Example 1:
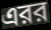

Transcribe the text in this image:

এরর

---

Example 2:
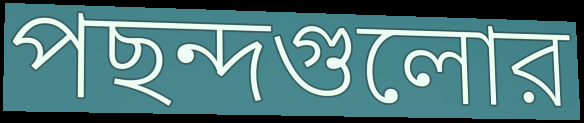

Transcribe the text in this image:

পছন্দগুলোর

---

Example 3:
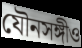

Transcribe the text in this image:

যৌনসঙ্গীও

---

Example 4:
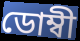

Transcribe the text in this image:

ডোম্বী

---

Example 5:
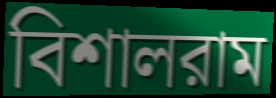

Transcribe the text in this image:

বিশালরাম